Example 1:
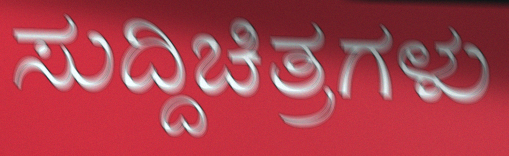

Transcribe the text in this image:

ಸುದ್ದಿಚಿತ್ರಗಳು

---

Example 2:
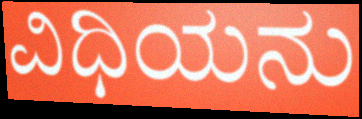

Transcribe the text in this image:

ವಿಧಿಯನು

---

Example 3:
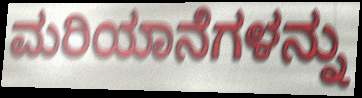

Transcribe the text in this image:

ಮರಿಯಾನೆಗಳನ್ನು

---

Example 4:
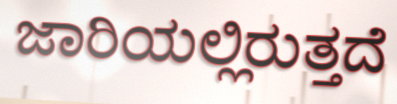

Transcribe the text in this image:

ಜಾರಿಯಲ್ಲಿರುತ್ತದೆ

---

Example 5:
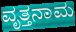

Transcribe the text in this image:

ವೃತ್ತನಾಮ